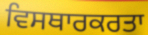
ਵਿਸਥਾਰਕਰਤਾ